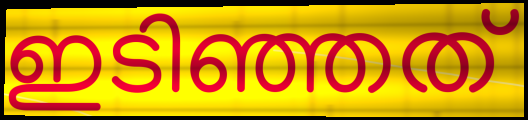
ഇടിഞ്ഞത്